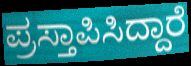
ಪ್ರಸ್ತಾಪಿಸಿದ್ದಾರೆ